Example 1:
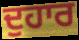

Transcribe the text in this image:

ਦੁਹਾਰ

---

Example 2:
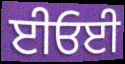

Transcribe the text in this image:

ਈਓਈ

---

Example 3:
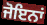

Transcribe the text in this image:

ਜੋਇਨਾਂ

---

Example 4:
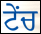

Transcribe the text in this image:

ਟੇਂਚ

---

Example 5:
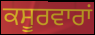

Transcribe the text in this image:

ਕਸੂਰਵਾਰਾਂ